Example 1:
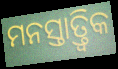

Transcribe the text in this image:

ମନସ୍ତାତ୍ତ୍ବିକ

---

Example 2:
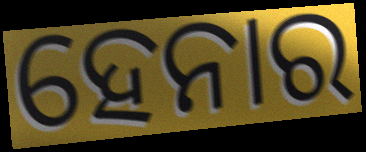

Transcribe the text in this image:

ହେନାର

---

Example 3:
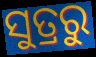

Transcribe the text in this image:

ସୁତ୍ରରୁ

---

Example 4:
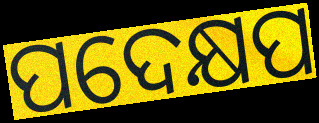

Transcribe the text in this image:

ପଦେକ୍ଷପ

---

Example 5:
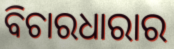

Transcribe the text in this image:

ବିଚାରଧାରାର